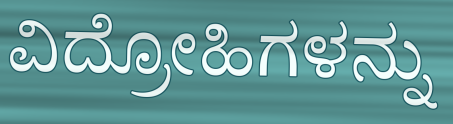
ವಿದ್ರೋಹಿಗಳನ್ನು